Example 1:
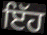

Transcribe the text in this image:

ਇੱਹ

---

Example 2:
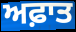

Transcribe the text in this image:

ਅਫ਼ਾਤ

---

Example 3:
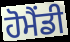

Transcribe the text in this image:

ਹੋਮੈਂਡੀ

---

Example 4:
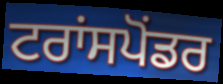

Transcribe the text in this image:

ਟਰਾਂਸਪੋਂਡਰ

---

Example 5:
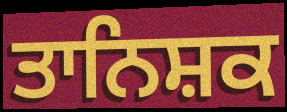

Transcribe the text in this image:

ਤਾਨਿਸ਼ਕ